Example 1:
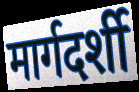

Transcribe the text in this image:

मार्गदर्शी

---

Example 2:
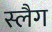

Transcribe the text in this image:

स्लैग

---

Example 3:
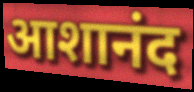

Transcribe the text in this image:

आशानंद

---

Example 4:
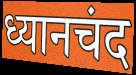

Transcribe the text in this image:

ध्यानचंद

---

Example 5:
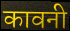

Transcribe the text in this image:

कावनी